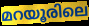
മറയൂരിലെ